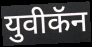
युवीकॅन